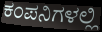
ಕಂಪನಿಗಳಲ್ಲಿ